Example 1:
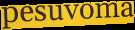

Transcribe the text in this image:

pesuvoma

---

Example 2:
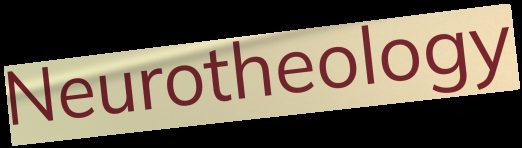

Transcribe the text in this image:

Neurotheology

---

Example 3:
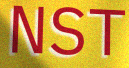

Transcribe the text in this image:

NST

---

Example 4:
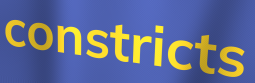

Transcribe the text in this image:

constricts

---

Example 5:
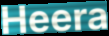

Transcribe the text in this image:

Heera